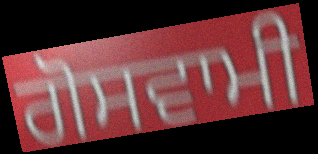
ਗੋਸਵਾਮੀ